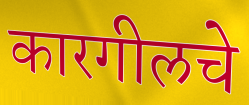
कारगीलचे